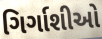
ગિર્ગાશીઓ